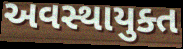
અવસ્થાયુક્ત